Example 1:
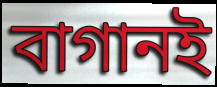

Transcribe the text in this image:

বাগানই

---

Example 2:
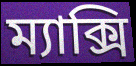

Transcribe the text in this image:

ম্যাক্সি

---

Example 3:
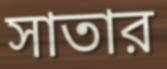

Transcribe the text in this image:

সাতার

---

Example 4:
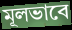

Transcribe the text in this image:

মূলভাবে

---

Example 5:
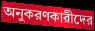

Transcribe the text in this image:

অনুকরণকারীদের